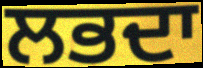
ਲਭਦਾ